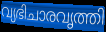
വ്യഭിചാരവൃത്തി